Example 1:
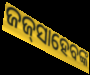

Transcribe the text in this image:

ଜଜ୍‍ସାହେବଙ୍କ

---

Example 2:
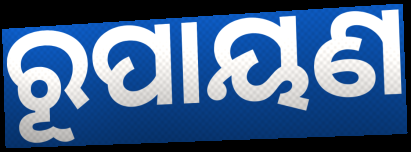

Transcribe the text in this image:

ରୂପାୟଣ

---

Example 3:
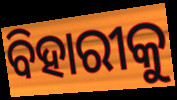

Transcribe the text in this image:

ବିହାରୀକୁ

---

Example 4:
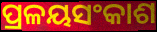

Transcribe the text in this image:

ପ୍ରଳୟସଂକାଶ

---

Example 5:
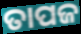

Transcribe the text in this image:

ତାପଜ